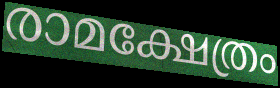
രാമക്ഷേത്രം